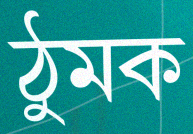
ঠুমক